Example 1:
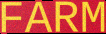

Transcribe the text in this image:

FARM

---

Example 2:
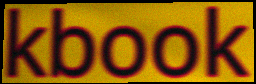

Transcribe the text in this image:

kbook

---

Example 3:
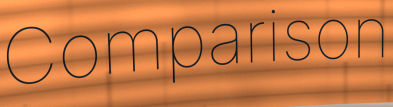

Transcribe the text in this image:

Comparison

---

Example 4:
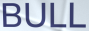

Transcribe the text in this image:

BULL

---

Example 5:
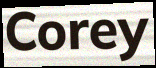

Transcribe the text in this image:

Corey